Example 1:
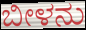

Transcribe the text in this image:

ಬೀಳನು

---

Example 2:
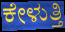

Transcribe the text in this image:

ಕೇಳುತ್ತಿ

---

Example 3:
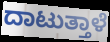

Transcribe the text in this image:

ದಾಟುತ್ತಾಳೆ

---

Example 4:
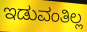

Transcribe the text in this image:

ಇಡುವಂತಿಲ್ಲ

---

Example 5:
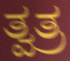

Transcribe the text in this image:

ತ್ವತ್ರ